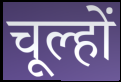
चूल्हों